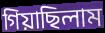
গিয়াছিলাম